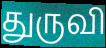
துருவி